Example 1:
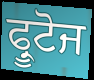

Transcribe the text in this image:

ਫ੍ਰੂਟੋਜ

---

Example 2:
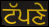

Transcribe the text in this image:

ਟੱਪਣੇ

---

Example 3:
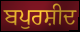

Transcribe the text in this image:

ਬਪੁਰਸ਼ੀਦ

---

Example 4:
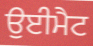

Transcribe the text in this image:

ਉਈਮੈਟ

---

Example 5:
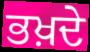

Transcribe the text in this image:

ਭਖ਼ਦੇ